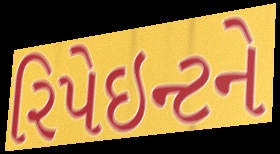
રિપેઇન્ટને